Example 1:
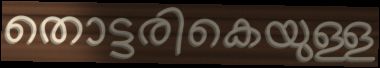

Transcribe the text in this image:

തൊട്ടരികെയുള്ള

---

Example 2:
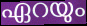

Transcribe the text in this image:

ഏറയും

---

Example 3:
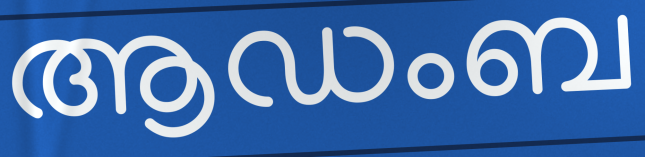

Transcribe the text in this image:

ആഡംബ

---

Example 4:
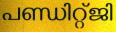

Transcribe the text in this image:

പണ്ഡിറ്റ്ജി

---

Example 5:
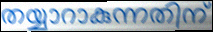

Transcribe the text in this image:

തയ്യാറാകുന്നതിന്